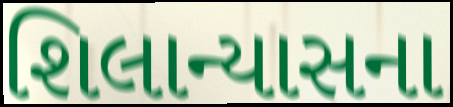
શિલાન્યાસના